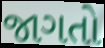
જાગતો